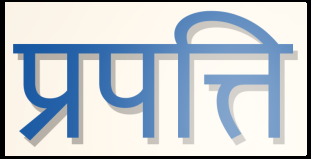
प्रपत्ति